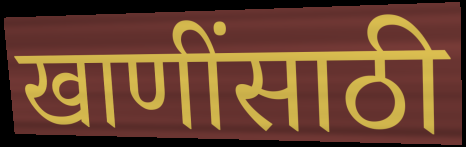
खाणींसाठी